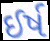
ઈર્ષ